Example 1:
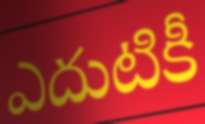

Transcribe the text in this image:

ఎదుటికీ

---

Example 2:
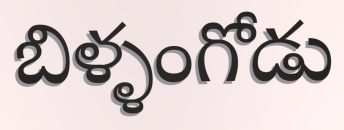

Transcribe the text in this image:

బిళ్ళంగోడు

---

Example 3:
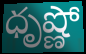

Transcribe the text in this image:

ధృష్ణో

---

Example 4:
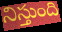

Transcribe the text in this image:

నిస్తుంది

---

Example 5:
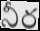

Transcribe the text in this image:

నీర